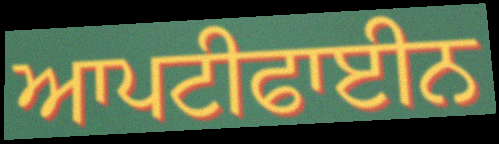
ਆਪਟੀਫਾਈਨ